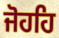
ਜੋਹਹਿ